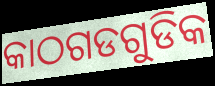
କାଠଗଡଗୁଡିକ